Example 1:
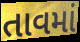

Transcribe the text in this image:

તાવમાં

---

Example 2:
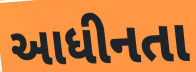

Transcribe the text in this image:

આધીનતા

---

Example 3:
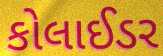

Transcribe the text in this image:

કોલાઈડર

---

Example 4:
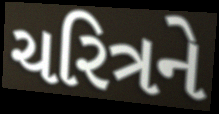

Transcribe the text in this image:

ચરિત્રને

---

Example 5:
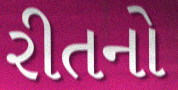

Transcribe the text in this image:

રીતનો